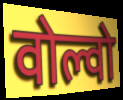
वोल्वो